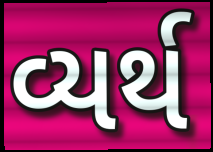
વ્યર્થ